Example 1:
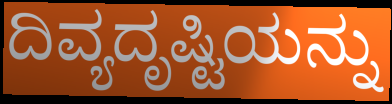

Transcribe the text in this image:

ದಿವ್ಯದೃಷ್ಟಿಯನ್ನು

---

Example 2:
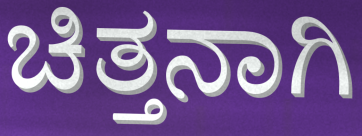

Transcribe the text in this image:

ಚಿತ್ತನಾಗಿ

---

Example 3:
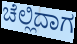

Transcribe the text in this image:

ಚೆಲ್ಲಿದಾಗ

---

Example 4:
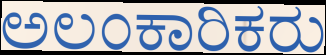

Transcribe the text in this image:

ಅಲಂಕಾರಿಕರು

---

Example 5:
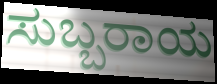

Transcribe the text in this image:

ಸುಬ್ಬರಾಯ